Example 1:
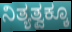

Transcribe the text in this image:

ನಿತ್ಯತ್ವಕ್ಕೂ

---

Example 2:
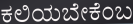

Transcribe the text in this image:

ಕಲಿಯಬೇಕೆಂಬ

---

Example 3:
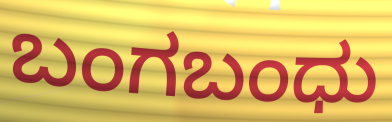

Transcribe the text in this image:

ಬಂಗಬಂಧು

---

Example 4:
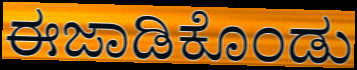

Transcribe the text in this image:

ಈಜಾಡಿಕೊಂಡು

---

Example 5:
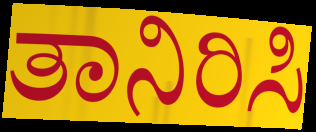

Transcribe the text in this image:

ತಾನಿರಿಸಿ